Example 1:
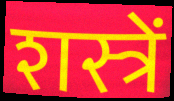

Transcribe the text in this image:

शस्त्रें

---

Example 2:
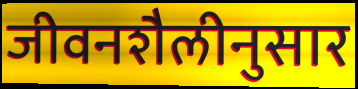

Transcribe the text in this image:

जीवनशैलीनुसार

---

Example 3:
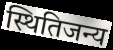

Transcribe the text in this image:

स्थितिजन्य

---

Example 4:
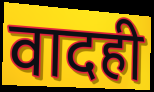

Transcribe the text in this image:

वादही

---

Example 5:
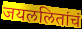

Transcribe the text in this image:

जयललितांचं